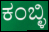
ಕಂಬ್ಳಿ